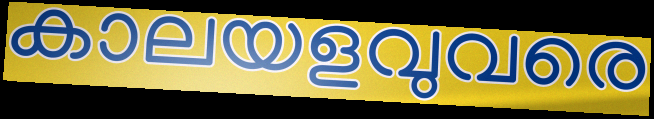
കാലയളവുവരെ